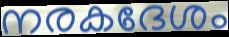
നരകദേശം